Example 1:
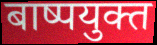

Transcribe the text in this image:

बाष्पयुक्त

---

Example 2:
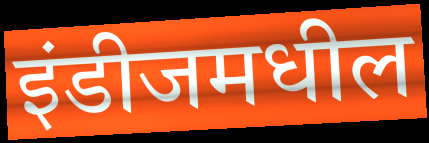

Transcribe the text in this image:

इंडीजमधील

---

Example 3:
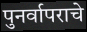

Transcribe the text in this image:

पुनर्वापराचे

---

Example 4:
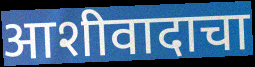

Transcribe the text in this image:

आशीवादाचा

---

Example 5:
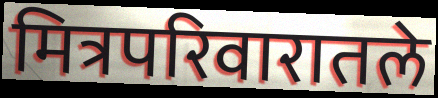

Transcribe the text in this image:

मित्रपरिवारातले